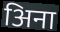
अिना